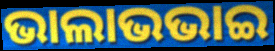
ଭାଲାଭଭାଇ